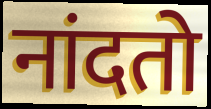
नांदतो